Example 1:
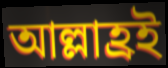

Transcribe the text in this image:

আল্লাহ্রই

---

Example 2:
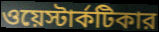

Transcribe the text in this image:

ওয়েস্টার্কটিকার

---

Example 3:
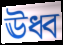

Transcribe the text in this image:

ঊধ্ব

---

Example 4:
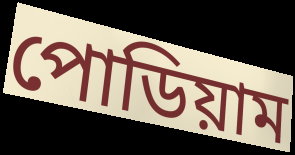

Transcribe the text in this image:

পোডিয়াম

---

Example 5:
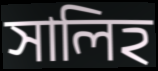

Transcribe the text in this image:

সালিহ